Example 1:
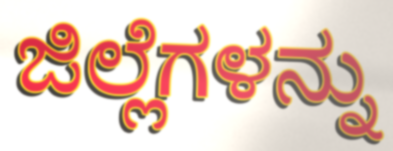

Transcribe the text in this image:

ಜಿಲ್ಲೆಗಳನ್ನು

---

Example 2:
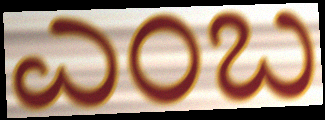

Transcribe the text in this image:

ಎಂಬ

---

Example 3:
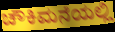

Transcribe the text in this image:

ಚೌಕಿಮನೆಯಲ್ಲಿ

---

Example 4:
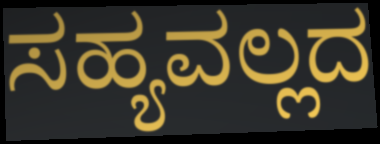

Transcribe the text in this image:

ಸಹ್ಯವಲ್ಲದ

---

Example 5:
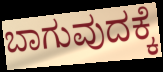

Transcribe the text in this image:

ಬಾಗುವುದಕ್ಕೆ